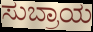
ಸುಬ್ರಾಯ